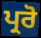
ਪ੍ਰਰੋ